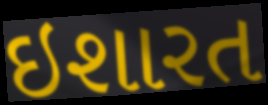
ઇશારત